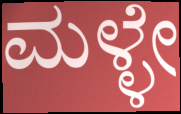
ಮಳ್ಳೇ